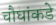
चौघांकडे